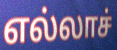
எல்லாச்